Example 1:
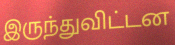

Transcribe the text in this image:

இருந்துவிட்டன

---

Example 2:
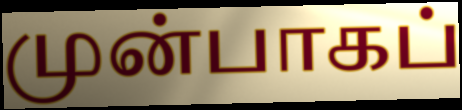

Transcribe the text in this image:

முன்பாகப்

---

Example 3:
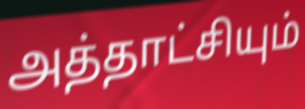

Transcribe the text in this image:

அத்தாட்சியும்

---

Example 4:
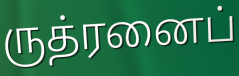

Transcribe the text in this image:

ருத்ரனைப்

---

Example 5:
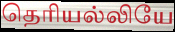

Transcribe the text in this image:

தெரியல்லியே